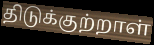
திடுக்குற்றாள்